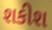
શકીશ